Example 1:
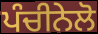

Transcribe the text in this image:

ਪੰਚੀਨੇਲੋ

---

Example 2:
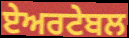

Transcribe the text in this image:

ਏਅਰਟੇਬਲ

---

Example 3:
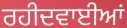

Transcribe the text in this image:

ਰਹੀਦਵਾਈਆਂ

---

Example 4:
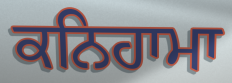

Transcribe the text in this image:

ਕਨਿਹਾਮਾ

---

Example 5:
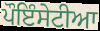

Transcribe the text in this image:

ਪੌਇੰਸੇਟੀਆ